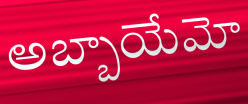
అబ్బాయేమో